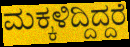
ಮಕ್ಕಳಿದ್ದಿದ್ದರೆ